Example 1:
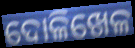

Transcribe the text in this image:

ଦୋଳିଖେଳ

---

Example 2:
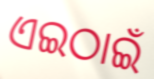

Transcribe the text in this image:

ଏଇଠାଇଁ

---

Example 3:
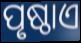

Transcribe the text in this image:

ପୃଷ୍ଠାଏ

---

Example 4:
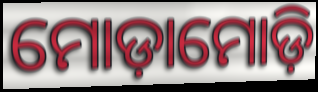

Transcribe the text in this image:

ମୋଡ଼ାମୋଡ଼ି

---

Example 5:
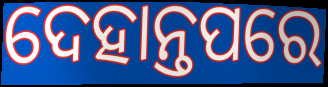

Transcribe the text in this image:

ଦେହାନ୍ତପରେ